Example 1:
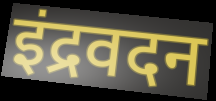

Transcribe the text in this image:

इंद्रवदन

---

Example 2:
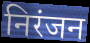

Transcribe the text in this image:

निरंजन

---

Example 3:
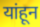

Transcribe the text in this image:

यांहून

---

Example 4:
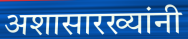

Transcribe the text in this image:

अशासारख्यांनी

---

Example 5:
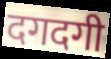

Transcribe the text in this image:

दगदगी